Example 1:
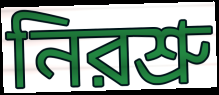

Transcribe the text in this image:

নিরশ্রু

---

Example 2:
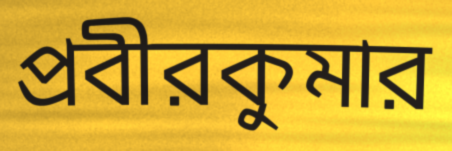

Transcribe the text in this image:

প্রবীরকুমার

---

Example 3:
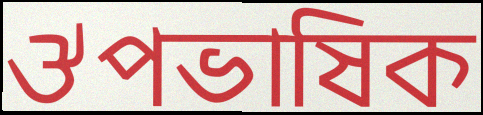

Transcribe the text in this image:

ঔপভাষিক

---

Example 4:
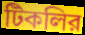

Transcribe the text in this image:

টিকলির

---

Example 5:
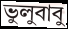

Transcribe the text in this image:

ভুলুবাবু